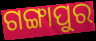
ଗଙ୍ଗାପୁର